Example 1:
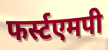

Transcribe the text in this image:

फर्स्टएमपी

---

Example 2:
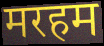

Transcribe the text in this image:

मरहम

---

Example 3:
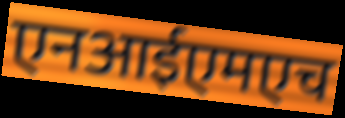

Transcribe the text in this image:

एनआईएमएच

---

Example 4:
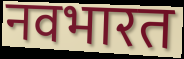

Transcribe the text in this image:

नवभारत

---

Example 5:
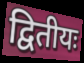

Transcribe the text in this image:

द्वितीयः